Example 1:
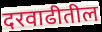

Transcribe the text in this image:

दरवाढीतील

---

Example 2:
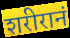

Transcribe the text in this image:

शरीरानं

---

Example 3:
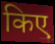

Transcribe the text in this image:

किए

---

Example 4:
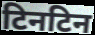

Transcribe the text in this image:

टिनटिन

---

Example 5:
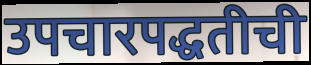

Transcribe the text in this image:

उपचारपद्धतीची